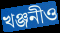
খঞ্জনীও